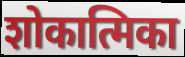
शोकात्मिका